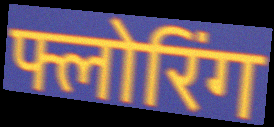
फ्लोरिंग